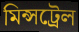
মিন্সট্রেল